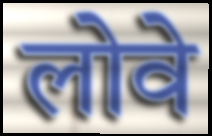
लोवे